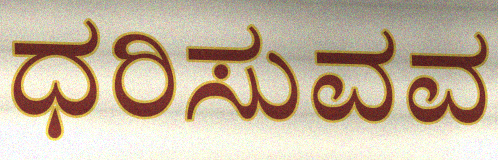
ಧರಿಸುವವ